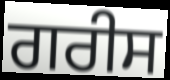
ਗਰੀਸ